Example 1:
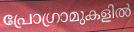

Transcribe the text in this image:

പ്രോഗ്രാമുകളിൽ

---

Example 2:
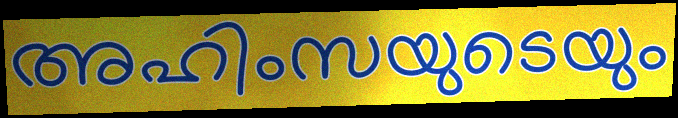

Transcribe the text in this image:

അഹിംസയുടെയും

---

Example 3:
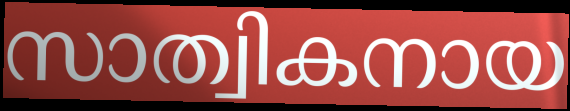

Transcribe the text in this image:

സാത്വികനായ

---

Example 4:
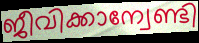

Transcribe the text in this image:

ജീവിക്കാന്വേണ്ടി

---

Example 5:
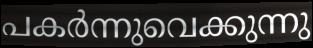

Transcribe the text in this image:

പകർന്നുവെക്കുന്നു